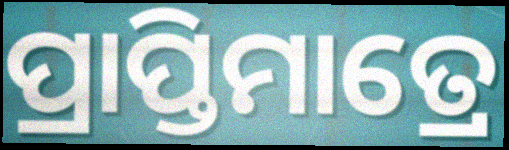
ପ୍ରାପ୍ତିମାତ୍ରେ